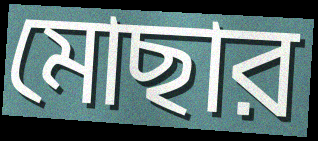
মোছার